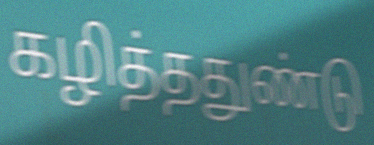
கழித்ததுண்டு